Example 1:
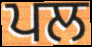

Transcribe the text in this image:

ਪਲ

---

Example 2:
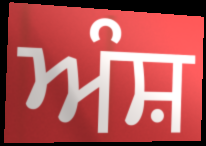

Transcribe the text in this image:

ਅੰਸ਼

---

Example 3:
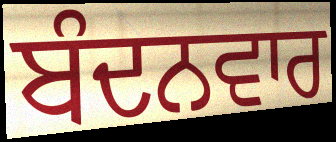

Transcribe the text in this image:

ਬੰਦਨਵਾਰ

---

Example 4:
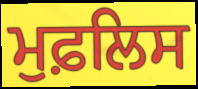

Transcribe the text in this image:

ਮੁਫ਼ਲਿਸ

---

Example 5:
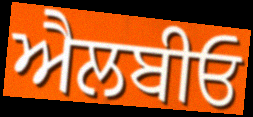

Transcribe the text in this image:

ਐਲਬੀਓ